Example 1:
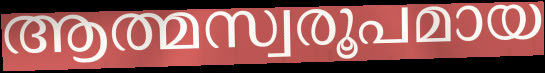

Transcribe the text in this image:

ആത്മസ്വരൂപമായ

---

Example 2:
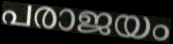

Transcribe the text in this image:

പരാജയം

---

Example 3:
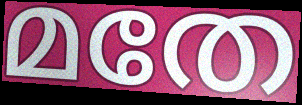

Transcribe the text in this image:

മതേ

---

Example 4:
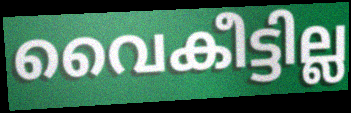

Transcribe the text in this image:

വൈകീട്ടില്ല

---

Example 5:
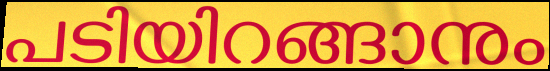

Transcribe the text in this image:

പടിയിറങ്ങാനും